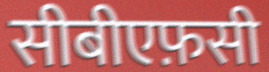
सीबीएफ़सी